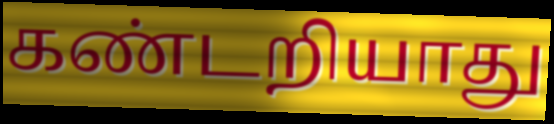
கண்டறியாது